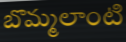
బొమ్మలాంటి